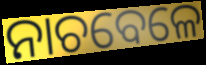
ନାଚବେଳେ